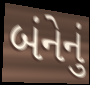
બંનેનું